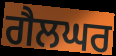
ਗੈਲਘਰ